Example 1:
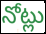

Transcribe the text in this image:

నోట్లు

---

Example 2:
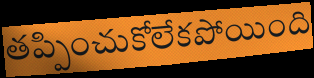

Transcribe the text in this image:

తప్పించుకోలేకపోయింది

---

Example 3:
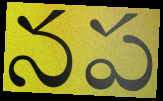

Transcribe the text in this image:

నప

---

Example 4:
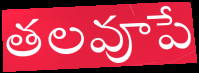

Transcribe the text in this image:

తలవూపే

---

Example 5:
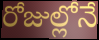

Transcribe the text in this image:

రోజుల్లోనే